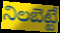
నిలబెట్టే